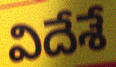
విదేశే